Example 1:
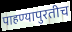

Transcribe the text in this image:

पाहण्यापुरतीच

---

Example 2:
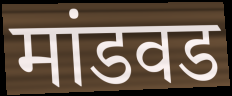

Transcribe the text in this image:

मांडवड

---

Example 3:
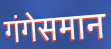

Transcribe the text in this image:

गंगेसमान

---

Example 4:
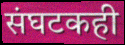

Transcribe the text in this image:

संघटकही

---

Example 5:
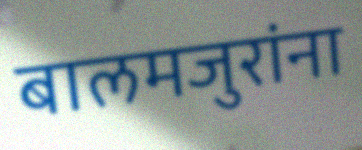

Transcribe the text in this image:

बालमजुरांना